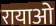
रायाओ